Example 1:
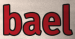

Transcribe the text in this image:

bael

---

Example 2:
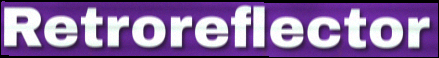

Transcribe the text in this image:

Retroreflector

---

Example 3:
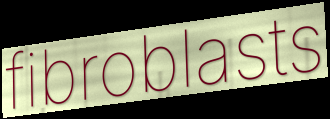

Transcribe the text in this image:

fibroblasts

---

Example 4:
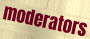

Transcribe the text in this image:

moderators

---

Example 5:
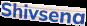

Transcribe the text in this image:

Shivsena